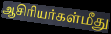
ஆசிரியர்கள்மீது